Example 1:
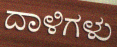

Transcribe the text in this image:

ದಾಳಿಗಳು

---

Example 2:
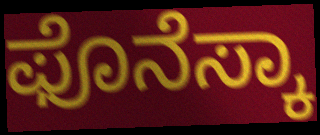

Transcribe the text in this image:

ಫೊನೆಸ್ಕಾ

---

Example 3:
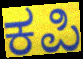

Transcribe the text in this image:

ಕಪಿ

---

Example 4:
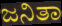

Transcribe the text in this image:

ಜನಿತಾ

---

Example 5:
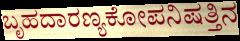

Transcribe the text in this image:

ಬೃಹದಾರಣ್ಯಕೋಪನಿಷತ್ತಿನ